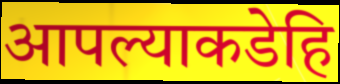
आपल्याकडेहि